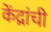
केंद्रांची